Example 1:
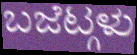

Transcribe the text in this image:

ಬಜೆಟ್ಗಳು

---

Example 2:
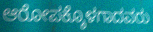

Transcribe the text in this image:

ಆರೋಪಕ್ಕೊಳಗಾದವರು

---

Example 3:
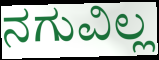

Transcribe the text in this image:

ನಗುವಿಲ್ಲ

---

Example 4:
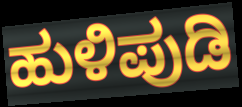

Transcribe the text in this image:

ಹುಳಿಪುಡಿ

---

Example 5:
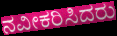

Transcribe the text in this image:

ನವೀಕರಿಸಿದರು